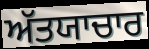
ਅੱਤਯਾਚਾਰ